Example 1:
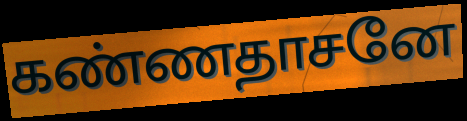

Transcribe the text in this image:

கண்ணதாசனே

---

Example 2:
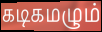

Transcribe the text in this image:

கடிகமழும்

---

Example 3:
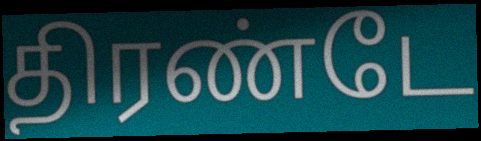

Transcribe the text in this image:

திரண்டே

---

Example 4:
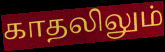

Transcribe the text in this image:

காதலிலும்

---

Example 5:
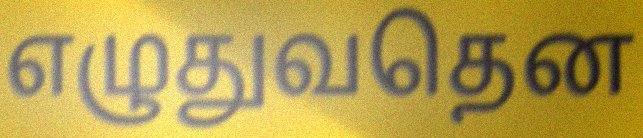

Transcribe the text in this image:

எழுதுவதென